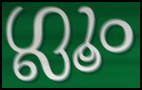
ഗ്ലൂം